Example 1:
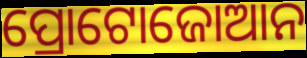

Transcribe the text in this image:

ପ୍ରୋଟୋଜୋଆନ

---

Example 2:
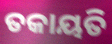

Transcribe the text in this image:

ତକାୟତି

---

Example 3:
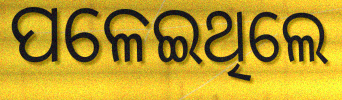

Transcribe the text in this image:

ପଳେଇଥିଲେ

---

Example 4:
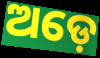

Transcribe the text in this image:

ଅଡ଼େ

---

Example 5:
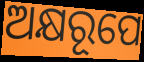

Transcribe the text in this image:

ଅକ୍ଷରୂପେ